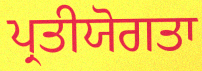
ਪ੍ਰਤੀਯੋਗਤਾ